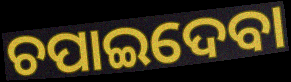
ଚପାଇଦେବା